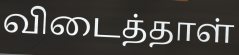
விடைத்தாள்